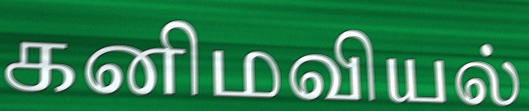
கனிமவியல்